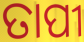
ତାପୀ